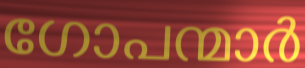
ഗോപന്മാർ